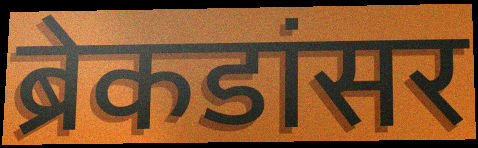
ब्रेकडांसर